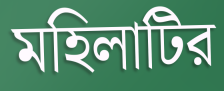
মহিলাটির